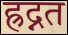
ह्रद्नत